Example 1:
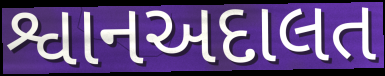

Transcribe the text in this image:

શ્વાનઅદાલત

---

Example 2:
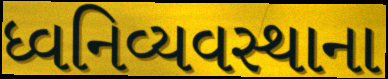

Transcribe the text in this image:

ધ્વનિવ્યવસ્થાના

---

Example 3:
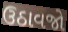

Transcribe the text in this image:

ઉઠાવજો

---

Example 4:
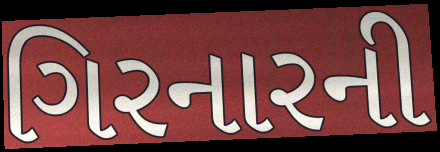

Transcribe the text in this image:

ગિરનારની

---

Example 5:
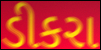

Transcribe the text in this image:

ડીકરા